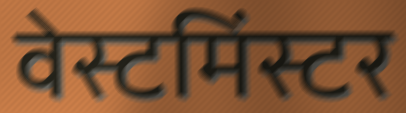
वेस्‍टमिंस्‍टर